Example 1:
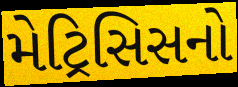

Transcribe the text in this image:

મેટ્રિસિસનો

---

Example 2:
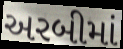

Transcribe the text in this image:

અરબીમાં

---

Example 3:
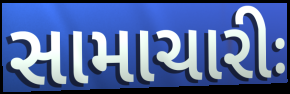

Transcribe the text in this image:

સામાચારીઃ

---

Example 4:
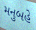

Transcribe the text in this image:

મનુબહે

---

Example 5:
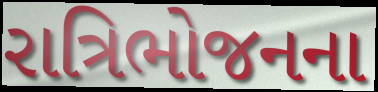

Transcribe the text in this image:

રાત્રિભોજનના